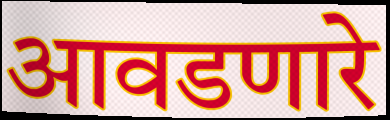
आवडणारे